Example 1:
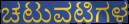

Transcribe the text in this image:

ಚಟುವಟಿಗಳ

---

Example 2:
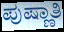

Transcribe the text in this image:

ಪುಷ್ಣಾತಿ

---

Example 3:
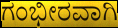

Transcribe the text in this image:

ಗಂಭೀರವಾಗಿ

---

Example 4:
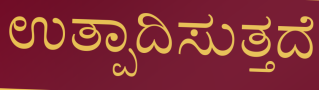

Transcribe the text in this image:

ಉತ್ಪಾದಿಸುತ್ತದೆ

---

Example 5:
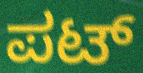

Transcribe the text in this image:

ಪಟ್